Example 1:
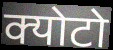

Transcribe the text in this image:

क्योटो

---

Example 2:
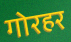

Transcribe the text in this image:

गोरहर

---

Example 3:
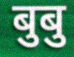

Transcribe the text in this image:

बुबु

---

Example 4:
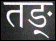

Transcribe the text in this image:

तङ्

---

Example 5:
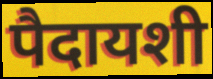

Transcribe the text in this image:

पैदायशी